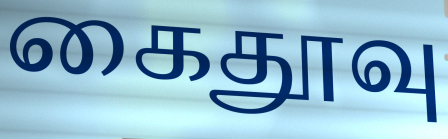
கைதூவு